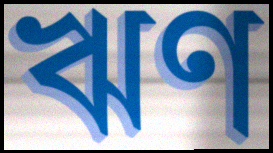
ঋণ